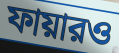
ফায়ারও